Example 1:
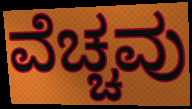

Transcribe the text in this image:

ವೆಚ್ಚವು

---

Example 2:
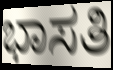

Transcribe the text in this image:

ಭಾಸತಿ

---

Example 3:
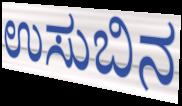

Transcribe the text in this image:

ಉಸುಬಿನ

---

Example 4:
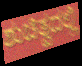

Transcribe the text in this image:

ಶುಚಿತ್ವದಲ್ಲಿ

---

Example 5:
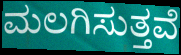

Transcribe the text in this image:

ಮಲಗಿಸುತ್ತವೆ